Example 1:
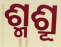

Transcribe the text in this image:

ଶ୍ମଶ୍ରୂ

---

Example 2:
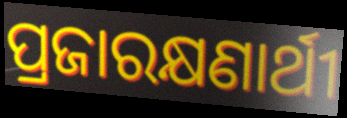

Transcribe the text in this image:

ପ୍ରଜାରକ୍ଷଣାର୍ଥୀ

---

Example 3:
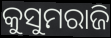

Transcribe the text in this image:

କୁସୁମରାଜି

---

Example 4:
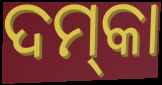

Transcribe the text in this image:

ଦମ୍‌କା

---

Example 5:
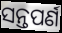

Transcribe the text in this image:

ସନ୍ତପର୍ଣ